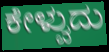
ಕೇಳ್ವುದು